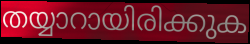
തയ്യാറായിരിക്കുക